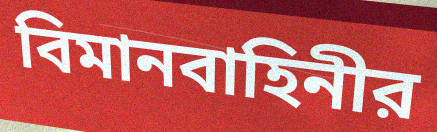
বিমানবাহিনীর